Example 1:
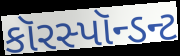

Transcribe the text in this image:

કૉરસ્પૉન્ડન્ટ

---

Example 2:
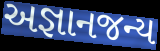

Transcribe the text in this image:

અજ્ઞાનજન્ય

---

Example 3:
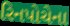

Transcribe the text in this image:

રિનપોચેના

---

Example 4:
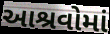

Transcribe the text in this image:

આશ્રવોમાં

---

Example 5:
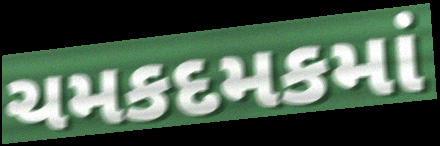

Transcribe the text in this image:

ચમકદમકમાં